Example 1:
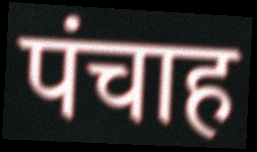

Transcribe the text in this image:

पंचाह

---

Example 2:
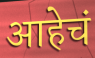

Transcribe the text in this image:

आहेचं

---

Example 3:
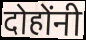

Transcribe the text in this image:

दोहोंनी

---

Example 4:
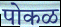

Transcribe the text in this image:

पोकळ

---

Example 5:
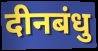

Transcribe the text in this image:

दीनबंधु